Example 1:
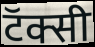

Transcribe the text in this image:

टॅक्सी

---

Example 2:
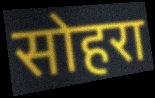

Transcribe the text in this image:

सोहरा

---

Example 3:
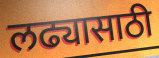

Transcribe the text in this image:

लढ्यासाठी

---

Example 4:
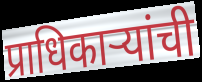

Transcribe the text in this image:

प्राधिकाऱ्यांची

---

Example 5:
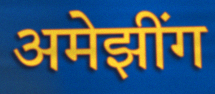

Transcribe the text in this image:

अमेझींग